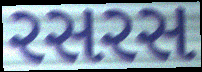
રસરસ